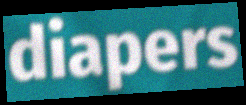
diapers